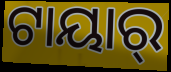
ଟାୟାର୍